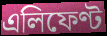
এলিফেণ্ট